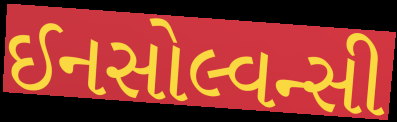
ઈનસોલ્વન્સી